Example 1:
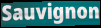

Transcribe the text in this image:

Sauvignon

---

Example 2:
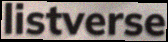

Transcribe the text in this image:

listverse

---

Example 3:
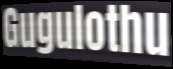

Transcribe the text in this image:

Gugulothu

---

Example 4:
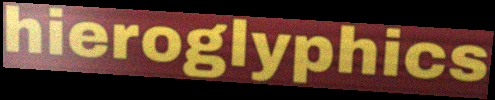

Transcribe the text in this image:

hieroglyphics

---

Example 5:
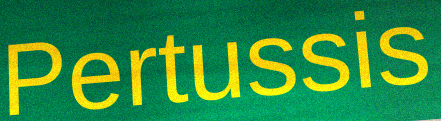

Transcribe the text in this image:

Pertussis